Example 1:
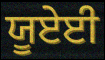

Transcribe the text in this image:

ਯੂਏਈ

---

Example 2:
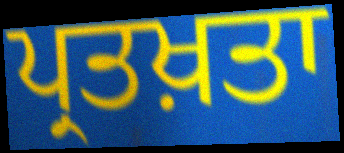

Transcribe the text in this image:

ਪ੍ਰਤਖ਼ਤਾ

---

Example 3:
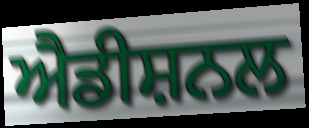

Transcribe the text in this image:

ਐਡੀਸ਼ਨਲ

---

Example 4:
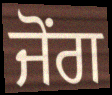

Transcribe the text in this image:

ਜੋਂਗ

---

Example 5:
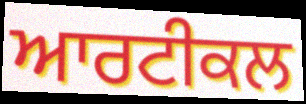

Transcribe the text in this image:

ਆਰਟੀਕਲ